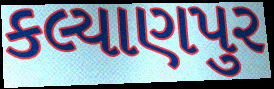
કલ્યાણપુર